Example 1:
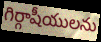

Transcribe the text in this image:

గిర్గాషీయులను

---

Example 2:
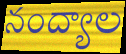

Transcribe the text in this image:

నంద్యాల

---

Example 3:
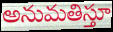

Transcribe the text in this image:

అనుమతిస్తూ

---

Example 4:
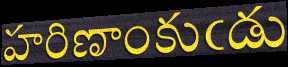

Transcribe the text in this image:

హరిణాంకుఁడు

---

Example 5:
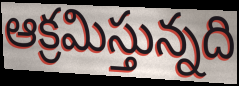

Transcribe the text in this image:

ఆక్రమిస్తున్నది